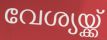
വേശ്യയ്ക്ക്